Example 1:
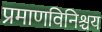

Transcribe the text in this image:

प्रमाणविनिश्चय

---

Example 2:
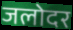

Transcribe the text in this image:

जलोदर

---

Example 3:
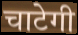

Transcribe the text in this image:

चाटेगी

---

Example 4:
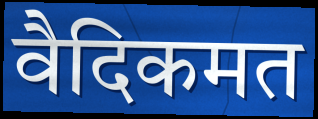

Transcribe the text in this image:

वैदिकमत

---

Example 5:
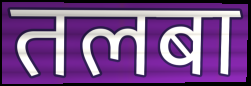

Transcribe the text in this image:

तलबा